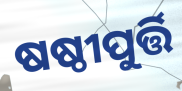
ଷଷ୍ଠୀପୁର୍ତ୍ତି